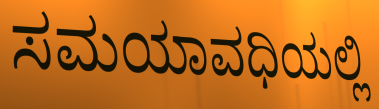
ಸಮಯಾವಧಿಯಲ್ಲಿ